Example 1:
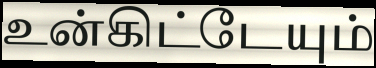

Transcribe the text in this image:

உன்கிட்டேயும்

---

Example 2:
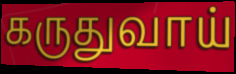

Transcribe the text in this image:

கருதுவாய்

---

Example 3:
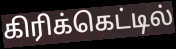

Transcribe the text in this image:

கிரிக்கெட்டில்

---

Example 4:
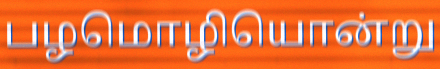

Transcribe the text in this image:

பழமொழியொன்று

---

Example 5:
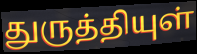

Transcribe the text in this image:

துருத்தியுள்